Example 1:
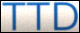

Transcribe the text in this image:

TTD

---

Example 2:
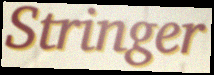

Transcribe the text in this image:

Stringer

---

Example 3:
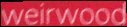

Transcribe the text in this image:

weirwood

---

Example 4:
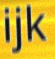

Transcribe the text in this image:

ijk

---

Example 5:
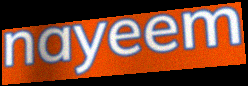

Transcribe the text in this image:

nayeem